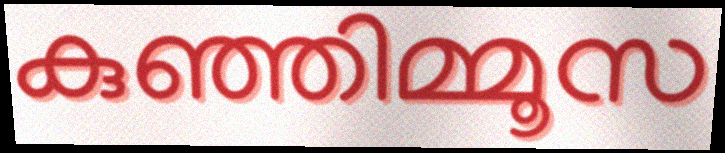
കുഞ്ഞിമ്മൂസ